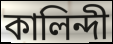
কালিন্দী